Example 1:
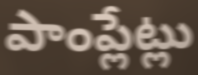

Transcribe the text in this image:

పాంప్లేట్లు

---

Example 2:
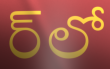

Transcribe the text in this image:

ర్‌లో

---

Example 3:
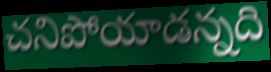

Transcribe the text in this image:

చనిపోయాడన్నది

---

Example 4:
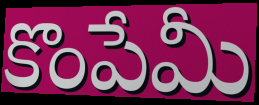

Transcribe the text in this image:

కొంపేమీ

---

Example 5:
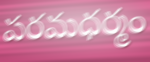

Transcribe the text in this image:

పరమధర్మం